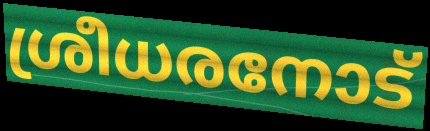
ശ്രീധരനോട്